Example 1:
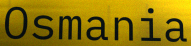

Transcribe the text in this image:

Osmania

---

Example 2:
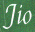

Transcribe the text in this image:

Jio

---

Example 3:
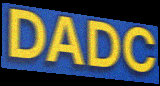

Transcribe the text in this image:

DADC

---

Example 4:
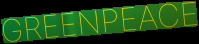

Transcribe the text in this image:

GREENPEACE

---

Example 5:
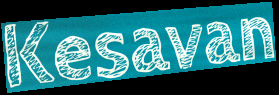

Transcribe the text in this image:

Kesavan